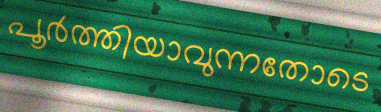
പൂർത്തിയാവുന്നതോടെ